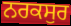
ਨਰਕਸੁਰ